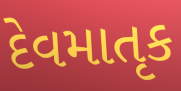
દેવમાતૃક